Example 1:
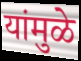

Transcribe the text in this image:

यांमुळे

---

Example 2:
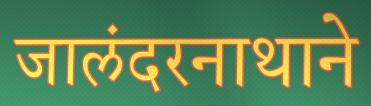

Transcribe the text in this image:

जालंदरनाथाने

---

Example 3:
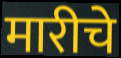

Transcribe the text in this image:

मारीचे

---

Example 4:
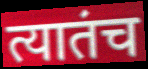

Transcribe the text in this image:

त्यातंच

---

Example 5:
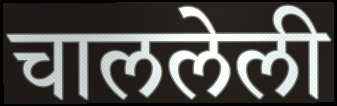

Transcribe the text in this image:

चाललेली